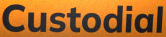
Custodial